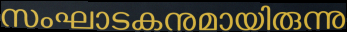
സംഘാടകനുമായിരുന്നു